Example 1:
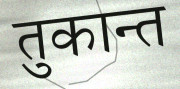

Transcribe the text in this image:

तुकान्त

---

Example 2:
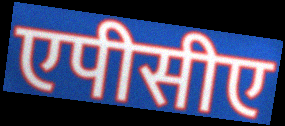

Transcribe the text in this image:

एपीसीए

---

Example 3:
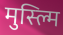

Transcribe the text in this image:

मुस्ल्मि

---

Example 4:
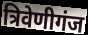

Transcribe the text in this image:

त्रिवेणीगंज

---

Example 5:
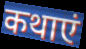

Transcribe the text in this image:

कथाएं